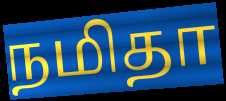
நமிதா